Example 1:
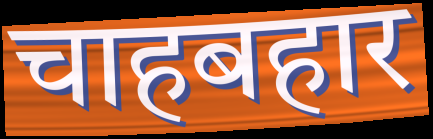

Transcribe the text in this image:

चाहबहार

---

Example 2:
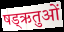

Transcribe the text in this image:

षड्ऋतुओं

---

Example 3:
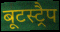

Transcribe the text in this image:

बूटस्ट्रैप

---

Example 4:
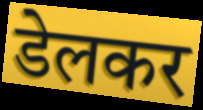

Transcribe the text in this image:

डेलकर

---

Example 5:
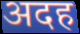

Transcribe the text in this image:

अदह